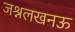
जश्नलखनऊ